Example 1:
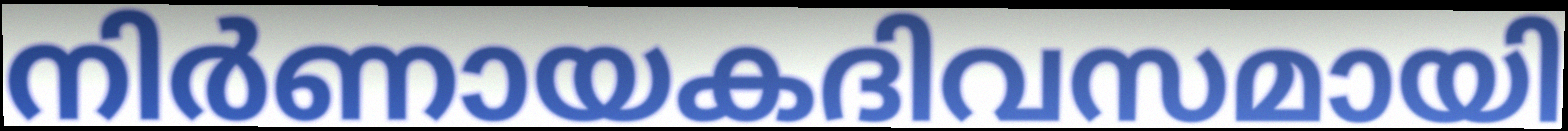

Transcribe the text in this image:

നിർണായകദിവസമായി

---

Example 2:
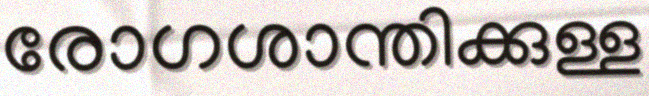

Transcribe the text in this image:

രോഗശാന്തിക്കുള്ള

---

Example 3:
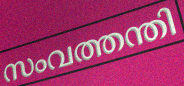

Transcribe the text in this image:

സംവത്തന്തി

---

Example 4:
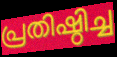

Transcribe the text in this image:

പ്രതിഷ്ഠിച്ച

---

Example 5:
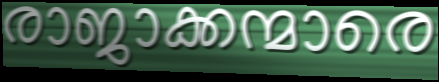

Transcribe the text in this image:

രാജാക്കന്മാരെ